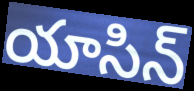
యాసిన్